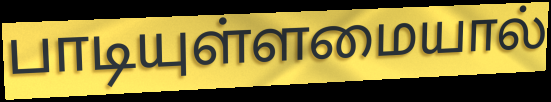
பாடியுள்ளமையால்